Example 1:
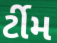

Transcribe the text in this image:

ર્ટીમ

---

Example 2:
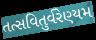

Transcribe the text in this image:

તત્સવિતુર્વરેણ્યમ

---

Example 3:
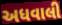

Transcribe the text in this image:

અધવાલી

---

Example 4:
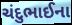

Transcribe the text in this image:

ચંદુભાઈના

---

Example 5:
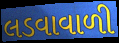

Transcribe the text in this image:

લડવાવાળી